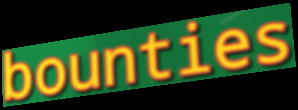
bounties